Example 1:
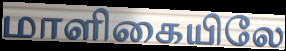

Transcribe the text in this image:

மாளிகையிலே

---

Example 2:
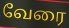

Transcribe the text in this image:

வேரை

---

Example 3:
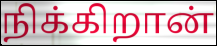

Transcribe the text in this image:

நிக்கிறான்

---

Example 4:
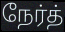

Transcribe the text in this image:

நேர்த்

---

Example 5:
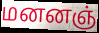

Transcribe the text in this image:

மனனஞ்